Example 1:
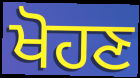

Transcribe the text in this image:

ਖੋਹਣ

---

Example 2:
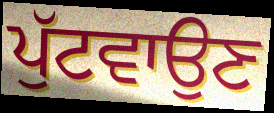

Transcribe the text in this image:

ਪੁੱਟਵਾਉਣ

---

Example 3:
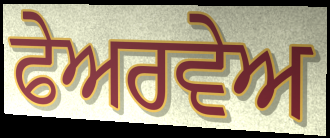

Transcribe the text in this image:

ਫੇਅਰਵੇਅ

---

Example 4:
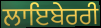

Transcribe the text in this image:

ਲਾਇਬੇਰਰੀ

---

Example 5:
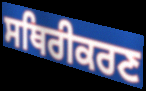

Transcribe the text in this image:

ਸਥਿਰੀਕਰਣ